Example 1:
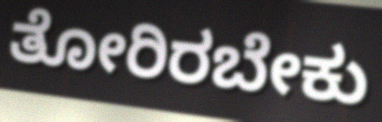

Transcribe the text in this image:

ತೋರಿರಬೇಕು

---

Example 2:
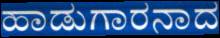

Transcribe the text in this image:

ಹಾಡುಗಾರನಾದ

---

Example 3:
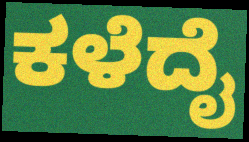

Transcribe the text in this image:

ಕಳೆದೈ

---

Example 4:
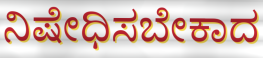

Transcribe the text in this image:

ನಿಷೇಧಿಸಬೇಕಾದ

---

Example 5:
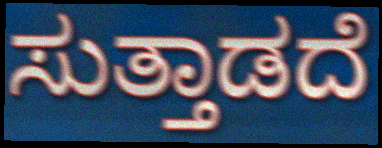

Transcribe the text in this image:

ಸುತ್ತಾಡದೆ